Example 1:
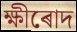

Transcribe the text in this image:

ক্ষীৰোদ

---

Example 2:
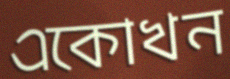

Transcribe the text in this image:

একোখন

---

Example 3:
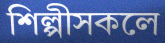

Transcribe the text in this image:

শিল্পীসকলে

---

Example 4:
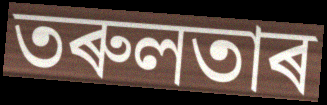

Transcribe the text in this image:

তৰুলতাৰ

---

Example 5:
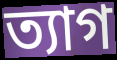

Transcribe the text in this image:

ত্যাগ